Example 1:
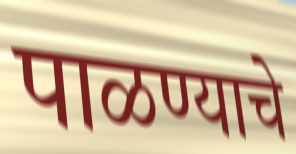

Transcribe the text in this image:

पाळण्याचे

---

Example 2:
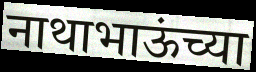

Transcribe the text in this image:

नाथाभाऊंच्या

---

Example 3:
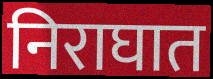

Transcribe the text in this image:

निराघात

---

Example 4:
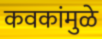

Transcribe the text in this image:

कवकांमुळे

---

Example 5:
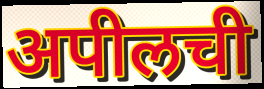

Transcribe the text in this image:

अपीलची